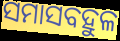
ସମାସବହୁଳ